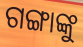
ଗଙ୍ଗାଙ୍କୁ